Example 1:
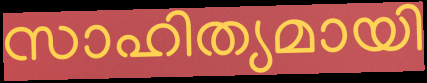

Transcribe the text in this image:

സാഹിത്യമായി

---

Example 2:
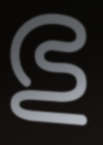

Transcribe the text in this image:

ഭു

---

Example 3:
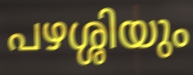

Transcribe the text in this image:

പഴശ്ശിയും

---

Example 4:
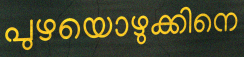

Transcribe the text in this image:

പുഴയൊഴുക്കിനെ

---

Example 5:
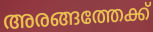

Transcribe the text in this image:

അരങ്ങത്തേക്ക്